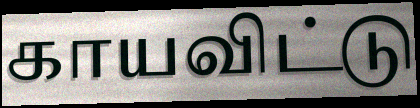
காயவிட்டு